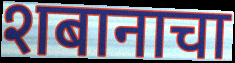
शबानाचा